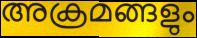
അക്രമങ്ങളും